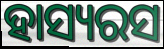
ହାସ୍ୟରସ